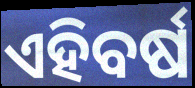
ଏହିବର୍ଷ